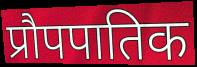
प्रौपपातिक